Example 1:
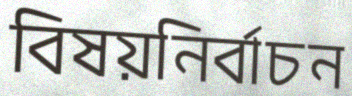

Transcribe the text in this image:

বিষয়নির্বাচন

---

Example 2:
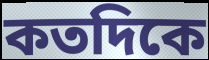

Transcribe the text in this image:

কতদিকে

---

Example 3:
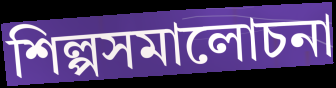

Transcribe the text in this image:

শিল্পসমালোচনা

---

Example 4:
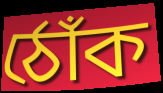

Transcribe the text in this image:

ঠোঁক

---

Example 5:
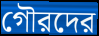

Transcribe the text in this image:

গৌরদের